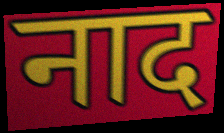
नाद